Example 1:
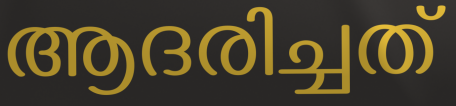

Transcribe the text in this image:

ആദരിച്ചത്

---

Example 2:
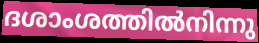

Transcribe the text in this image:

ദശാംശത്തിൽനിന്നു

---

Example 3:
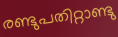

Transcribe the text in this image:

രണ്ടുപതിറ്റാണ്ടു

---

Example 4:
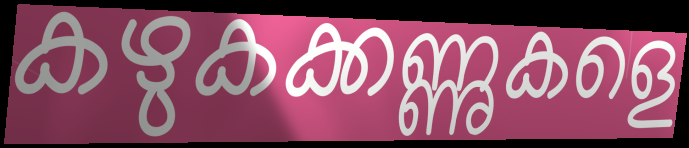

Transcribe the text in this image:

കഴുകക്കണ്ണുകളെ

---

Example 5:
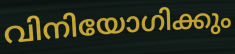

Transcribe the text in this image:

വിനിയോഗിക്കും